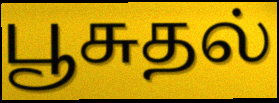
பூசுதல்